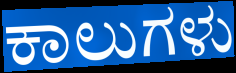
ಕಾಲುಗಳು